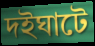
দইঘাটে